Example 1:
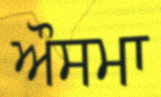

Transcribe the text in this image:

ਔਸਮਾ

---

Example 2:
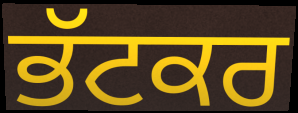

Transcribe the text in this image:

ਭੱਟਕਰ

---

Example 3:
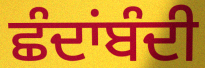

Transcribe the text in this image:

ਛੰਦਾਂਬੰਦੀ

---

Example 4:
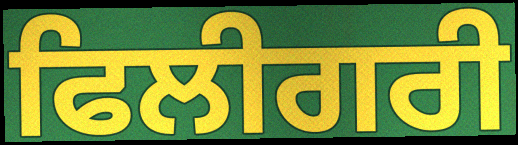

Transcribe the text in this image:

ਫਿਲੀਗਰੀ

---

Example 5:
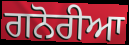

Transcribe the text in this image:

ਗਨੋਰੀਆ